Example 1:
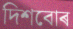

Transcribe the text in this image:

দিশবোৰ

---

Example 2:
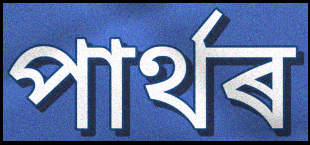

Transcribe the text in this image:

পাৰ্থৰ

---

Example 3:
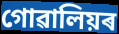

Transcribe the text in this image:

গোৱালিয়ৰ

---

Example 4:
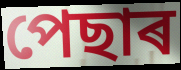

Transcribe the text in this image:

পেছাৰ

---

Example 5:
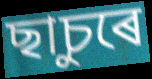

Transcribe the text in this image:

ছাচুৰে